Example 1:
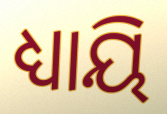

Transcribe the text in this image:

ଧ୍ୟାୟି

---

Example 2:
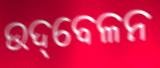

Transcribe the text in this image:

ଉଦ୍‌ବେଳନ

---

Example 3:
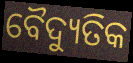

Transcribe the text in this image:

ବୈଦ୍ୟୁତିକ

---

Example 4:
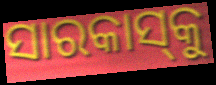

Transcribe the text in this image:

ସାରକାସ୍‌କୁ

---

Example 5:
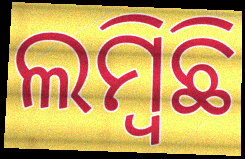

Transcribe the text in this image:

ଲମ୍ବିଛି